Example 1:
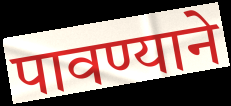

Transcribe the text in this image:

पावण्याने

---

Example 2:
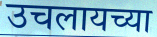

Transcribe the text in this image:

उचलायच्या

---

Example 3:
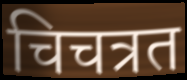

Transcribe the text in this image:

चिचत्रत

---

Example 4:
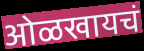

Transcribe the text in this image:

ओळखायचं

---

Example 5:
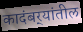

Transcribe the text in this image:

कादंबर्यांतील